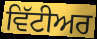
ਵਿੱਟੀਅਰ